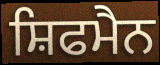
ਸ਼ਿਫਮੈਨ